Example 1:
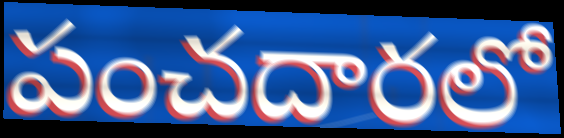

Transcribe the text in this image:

పంచదారలో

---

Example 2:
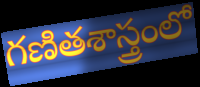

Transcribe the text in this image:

గణితశాస్త్రంలో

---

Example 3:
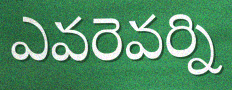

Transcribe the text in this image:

ఎవరెవర్ని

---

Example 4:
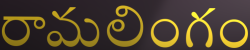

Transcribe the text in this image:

రామలింగం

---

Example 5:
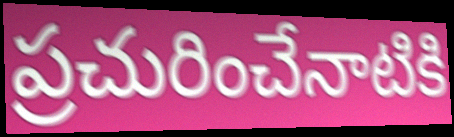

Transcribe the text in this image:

ప్రచురించేనాటికి